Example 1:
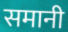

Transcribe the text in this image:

समानी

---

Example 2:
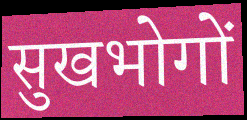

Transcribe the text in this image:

सुखभोगों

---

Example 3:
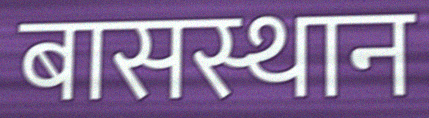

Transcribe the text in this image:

बासस्थान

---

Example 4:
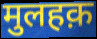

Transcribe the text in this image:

मुलहक़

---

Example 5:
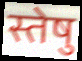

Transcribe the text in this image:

स्तेषु